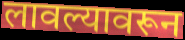
लावल्यावरून